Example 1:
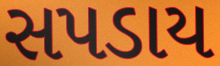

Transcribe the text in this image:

સપડાય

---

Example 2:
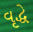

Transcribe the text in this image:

વૃદ્ધે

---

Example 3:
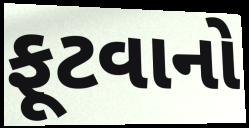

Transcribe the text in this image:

ફૂટવાનો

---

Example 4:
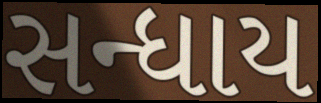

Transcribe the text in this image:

સન્ધાય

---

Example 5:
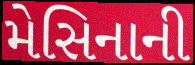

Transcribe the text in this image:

મેસિનાની